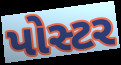
પોસ્ટર